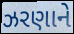
ઝરણાને